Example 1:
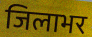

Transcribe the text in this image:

जिलाभर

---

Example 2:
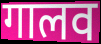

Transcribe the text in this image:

गालव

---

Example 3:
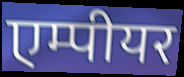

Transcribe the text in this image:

एम्पीयर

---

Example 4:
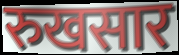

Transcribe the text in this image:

रुखसार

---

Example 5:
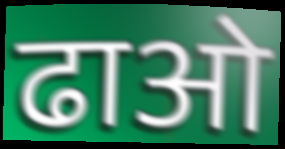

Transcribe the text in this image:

ढाओ